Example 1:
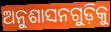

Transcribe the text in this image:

ଅନୁଶାସନଗୁଡ଼ିକୁ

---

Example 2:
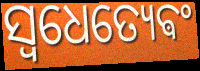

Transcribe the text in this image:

ସ୍ଵଧେତ୍ଯେଵଂ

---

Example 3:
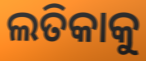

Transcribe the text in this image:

ଲତିକାକୁ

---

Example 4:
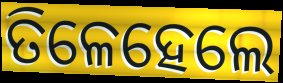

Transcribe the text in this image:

ତିଳେହେଲେ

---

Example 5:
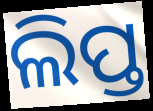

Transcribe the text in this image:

ଲିପ୍ତ